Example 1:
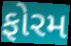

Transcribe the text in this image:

ફોરમ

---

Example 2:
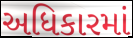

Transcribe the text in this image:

અધિકારમાં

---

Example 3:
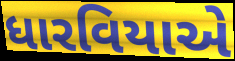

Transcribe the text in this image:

ધારવિયાએ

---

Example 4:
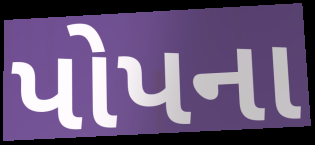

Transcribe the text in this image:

પોપના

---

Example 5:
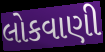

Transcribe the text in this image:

લોકવાણી